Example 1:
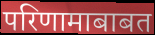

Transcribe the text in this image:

परिणामाबाबत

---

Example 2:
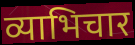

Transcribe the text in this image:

व्याभिचार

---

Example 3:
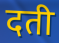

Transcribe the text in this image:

दती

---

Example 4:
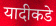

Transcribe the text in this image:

यादीकडे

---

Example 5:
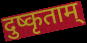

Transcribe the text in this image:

दुष्कृताम्